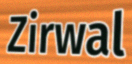
Zirwal